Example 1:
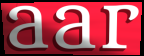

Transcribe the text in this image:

aar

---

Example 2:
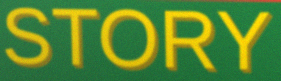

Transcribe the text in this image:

STORY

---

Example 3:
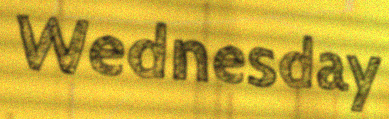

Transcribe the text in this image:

Wednesday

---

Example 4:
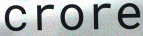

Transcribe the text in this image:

crore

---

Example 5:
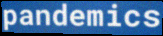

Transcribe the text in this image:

pandemics